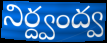
నిర్ద్వంద్వ